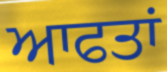
ਆਫਤਾਂ